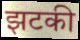
झटकी